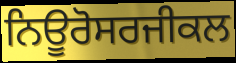
ਨਿਊਰੋਸਰਜੀਕਲ